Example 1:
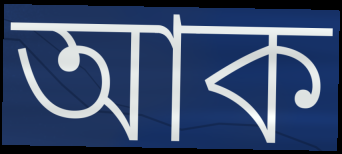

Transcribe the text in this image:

আক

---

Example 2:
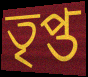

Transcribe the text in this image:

তৃপ্ত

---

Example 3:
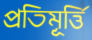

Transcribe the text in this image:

প্ৰতিমূৰ্ত্তি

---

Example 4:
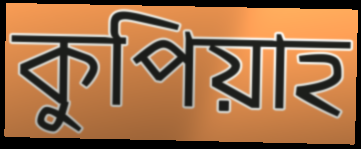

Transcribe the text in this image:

কুপিয়াহ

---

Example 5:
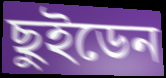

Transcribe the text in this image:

ছুইডেন